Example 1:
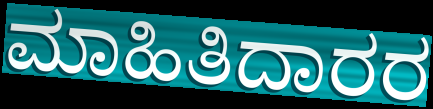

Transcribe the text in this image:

ಮಾಹಿತಿದಾರರ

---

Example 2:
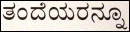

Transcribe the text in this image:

ತಂದೆಯರನ್ನೂ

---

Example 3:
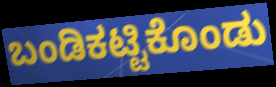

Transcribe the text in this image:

ಬಂಡಿಕಟ್ಟಿಕೊಂಡು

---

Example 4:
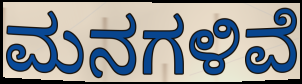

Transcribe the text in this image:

ಮನಗಳಿವೆ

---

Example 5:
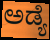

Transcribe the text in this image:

ಅಡ್ಯೆ